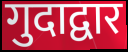
गुदाद्वार